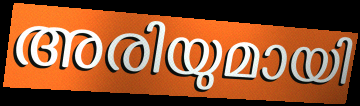
അരിയുമായി